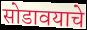
सोडावयाचे